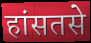
हांसतसे